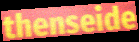
thenseide